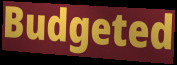
Budgeted